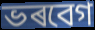
ভৰবেগ